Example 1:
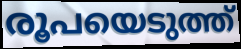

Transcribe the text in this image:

രൂപയെടുത്ത്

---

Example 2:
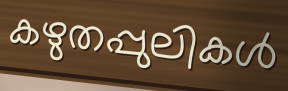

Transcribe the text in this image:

കഴുതപ്പുലികൾ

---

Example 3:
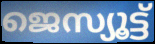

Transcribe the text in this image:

ജെസ്യൂട്ട്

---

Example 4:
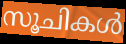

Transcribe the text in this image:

സൂചികൾ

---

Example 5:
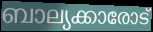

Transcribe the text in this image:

ബാല്യക്കാരോട്